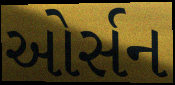
ઓર્સન